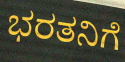
ಭರತನಿಗೆ